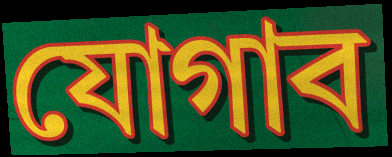
যোগাব